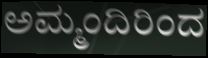
ಅಮ್ಮಂದಿರಿಂದ